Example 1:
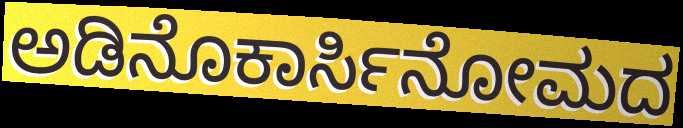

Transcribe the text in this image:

ಅಡಿನೊಕಾರ್ಸಿನೋಮದ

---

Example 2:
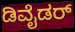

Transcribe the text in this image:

ಡಿವೈಡರ್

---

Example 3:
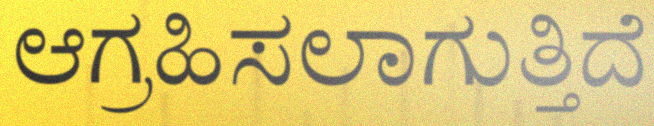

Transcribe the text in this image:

ಆಗ್ರಹಿಸಲಾಗುತ್ತಿದೆ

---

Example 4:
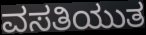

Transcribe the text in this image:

ವಸತಿಯುತ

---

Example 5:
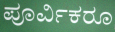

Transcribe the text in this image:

ಪೂರ್ವಿಕರೂ